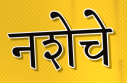
नशेचे